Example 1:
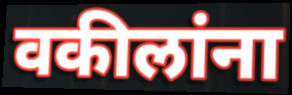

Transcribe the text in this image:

वकीलांना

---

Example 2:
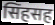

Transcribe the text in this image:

सिंहसह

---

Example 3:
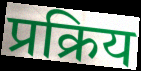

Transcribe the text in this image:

प्रक्रिय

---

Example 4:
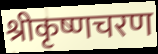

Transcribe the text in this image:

श्रीकृष्णचरण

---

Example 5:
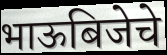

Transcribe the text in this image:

भाऊबिजेचे